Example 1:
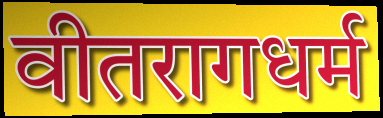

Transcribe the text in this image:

वीतरागधर्म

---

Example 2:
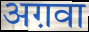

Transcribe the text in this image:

अग़वा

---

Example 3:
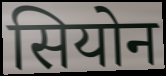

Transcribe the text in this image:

सियोन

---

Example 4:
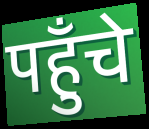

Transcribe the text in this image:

पहुँचे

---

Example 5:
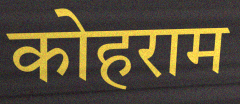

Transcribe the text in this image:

कोहराम